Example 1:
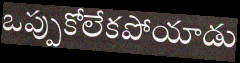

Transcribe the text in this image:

ఒప్పుకోలేకపోయాడు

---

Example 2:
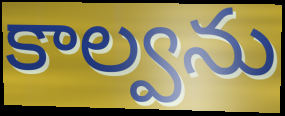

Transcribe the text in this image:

కాల్వను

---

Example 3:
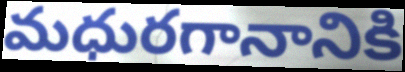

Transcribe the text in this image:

మధురగానానికి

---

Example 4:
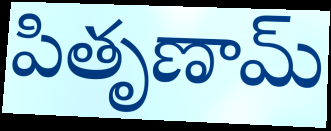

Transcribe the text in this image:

పితృణామ్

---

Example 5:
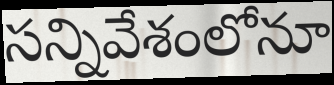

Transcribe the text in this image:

సన్నివేశంలోనూ